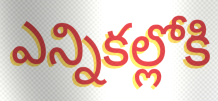
ఎన్నికల్లోకి